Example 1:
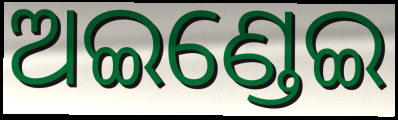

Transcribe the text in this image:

ଅଇଣ୍ଡେଇ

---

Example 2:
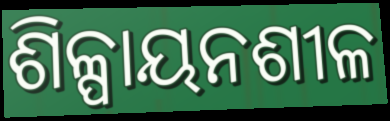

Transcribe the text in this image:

ଶିଳ୍ପାୟନଶୀଳ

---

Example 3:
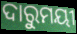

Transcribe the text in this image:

ଦାରୁମୟୀ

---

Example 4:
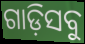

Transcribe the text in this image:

ଗାଡ଼ିସବୁ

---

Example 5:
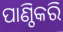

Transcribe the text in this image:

ପାଣ୍ଠିକରି